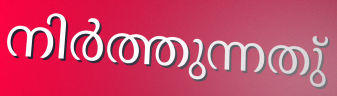
നിർത്തുന്നതു്